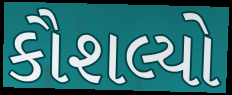
કૌશલ્યો